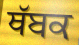
ਥੱਬਕ